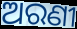
ଅରଣୀ